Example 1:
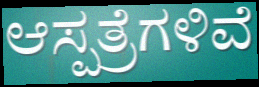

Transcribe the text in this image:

ಆಸ್ಪತ್ರೆಗಳಿವೆ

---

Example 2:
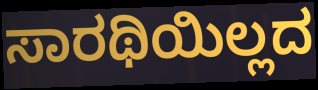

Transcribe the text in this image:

ಸಾರಥಿಯಿಲ್ಲದ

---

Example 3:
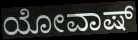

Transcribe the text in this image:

ಯೋವಾಷ್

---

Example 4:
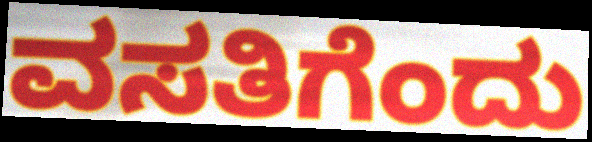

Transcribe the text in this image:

ವಸತಿಗೆಂದು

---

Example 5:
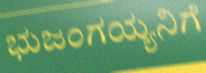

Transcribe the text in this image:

ಭುಜಂಗಯ್ಯನಿಗೆ